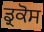
ਡ੍ਰਕੋਸ